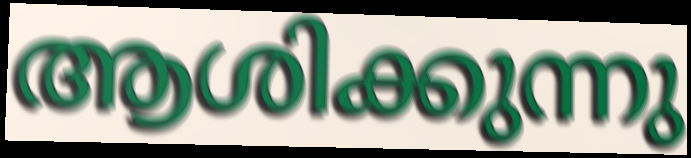
ആശിക്കുന്നു